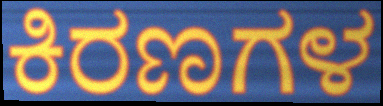
ಕಿರಣಗಳ